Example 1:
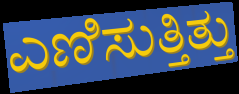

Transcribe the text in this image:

ಎಣಿಸುತ್ತಿತ್ತು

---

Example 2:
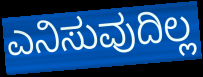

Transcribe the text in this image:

ಎನಿಸುವುದಿಲ್ಲ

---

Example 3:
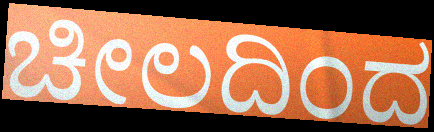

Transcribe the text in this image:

ಚೀಲದಿಂದ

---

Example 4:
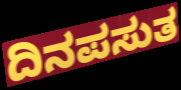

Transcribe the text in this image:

ದಿನಪಸುತ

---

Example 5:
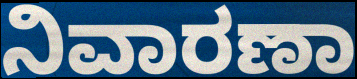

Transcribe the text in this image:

ನಿವಾರಣಾ